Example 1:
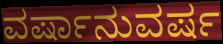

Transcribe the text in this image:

ವರ್ಷಾನುವರ್ಷ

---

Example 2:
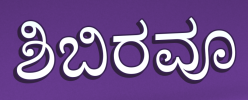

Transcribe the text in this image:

ಶಿಬಿರವೂ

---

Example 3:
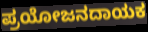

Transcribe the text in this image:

ಪ್ರಯೋಜನದಾಯಕ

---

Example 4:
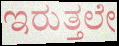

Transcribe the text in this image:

ಇರುತ್ತಲೇ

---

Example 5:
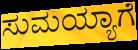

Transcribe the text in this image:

ಸುಮಯ್ಯಾಗೆ